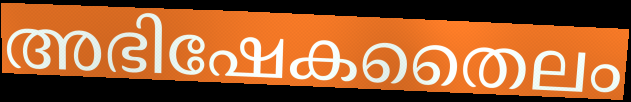
അഭിഷേകതൈലം